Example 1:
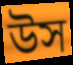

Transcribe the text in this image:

উস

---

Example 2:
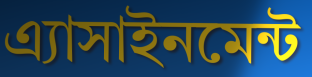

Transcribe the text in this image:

এ্যাসাইনমেন্ট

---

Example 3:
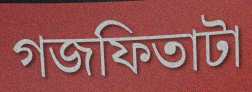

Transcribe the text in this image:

গজফিতাটা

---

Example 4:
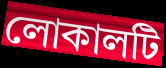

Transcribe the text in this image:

লোকালটি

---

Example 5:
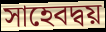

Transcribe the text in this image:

সাহেবদ্বয়